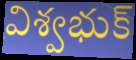
విశ్వభుక్